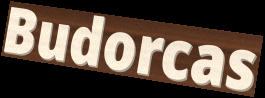
Budorcas